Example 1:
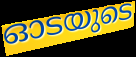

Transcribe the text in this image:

ഓടയുടെ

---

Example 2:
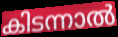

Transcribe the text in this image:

കിടന്നാൽ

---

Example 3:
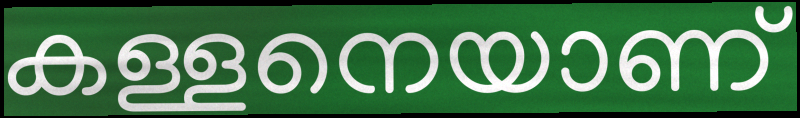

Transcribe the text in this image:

കള്ളനെയാണ്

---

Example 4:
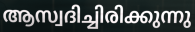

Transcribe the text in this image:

ആസ്വദിച്ചിരിക്കുന്നു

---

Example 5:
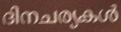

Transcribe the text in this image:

ദിനചര്യകൾ